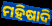
ମହିଷାଦି